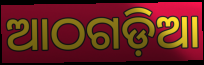
ଆଠଗଡ଼ିଆ